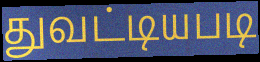
துவட்டியபடி